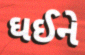
ઘઈને